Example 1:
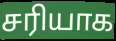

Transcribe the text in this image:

சரியாக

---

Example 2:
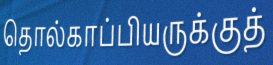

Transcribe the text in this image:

தொல்காப்பியருக்குத்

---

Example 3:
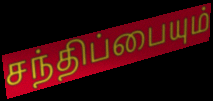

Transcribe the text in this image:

சந்திப்பையும்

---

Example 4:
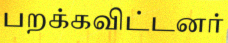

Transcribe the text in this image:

பறக்கவிட்டனர்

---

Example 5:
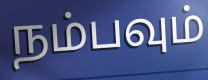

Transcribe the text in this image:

நம்பவும்